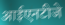
आईएनटीजे